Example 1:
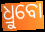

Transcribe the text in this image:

ଧ୍ରୁବୋ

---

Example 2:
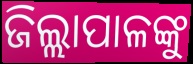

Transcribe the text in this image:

ଜିଲ୍ଲାପାଳଙ୍କୁ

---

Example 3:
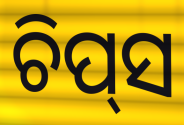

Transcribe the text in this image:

ଚିପ୍‌ସ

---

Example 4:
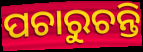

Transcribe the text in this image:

ପଚାରୁଚନ୍ତି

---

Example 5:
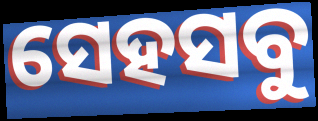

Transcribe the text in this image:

ସେହସବୁ